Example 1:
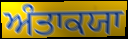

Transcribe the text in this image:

ਅੰਤਾਕਯਾ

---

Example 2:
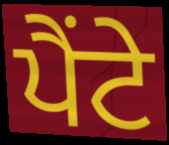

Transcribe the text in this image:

ਪੈਂਟੇ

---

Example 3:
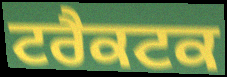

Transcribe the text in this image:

ਟਰੈਕਟਕ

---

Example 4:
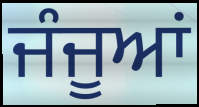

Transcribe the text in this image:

ਜੰਜੂਆਂ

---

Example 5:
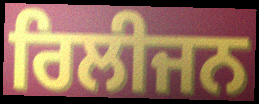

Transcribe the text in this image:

ਰਿਲੀਜਨ